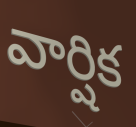
వార్షిక